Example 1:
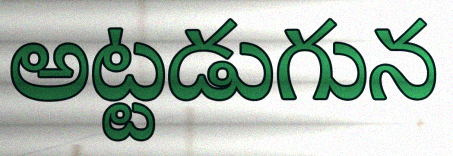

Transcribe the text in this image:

అట్టడుగున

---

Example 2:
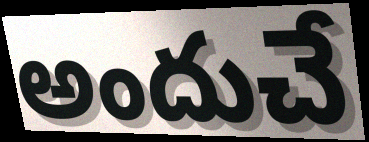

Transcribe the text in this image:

అందుచే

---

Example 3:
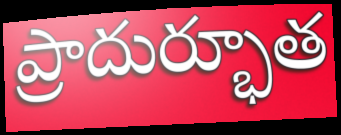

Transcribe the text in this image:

ప్రాదుర్భూత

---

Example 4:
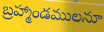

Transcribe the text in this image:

బ్రహ్మాండములనూ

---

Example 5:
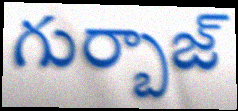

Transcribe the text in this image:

గుర్బాజ్